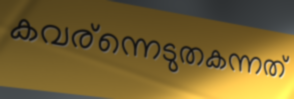
കവര്ന്നെടുതകന്നത്